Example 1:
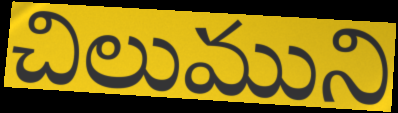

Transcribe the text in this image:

చిలుముని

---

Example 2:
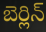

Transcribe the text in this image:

బెర్లిన్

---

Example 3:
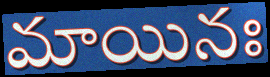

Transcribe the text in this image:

మాయినః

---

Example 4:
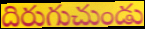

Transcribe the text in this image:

దిరుగుచుండు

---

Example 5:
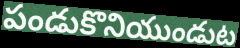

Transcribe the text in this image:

పండుకొనియుండుట